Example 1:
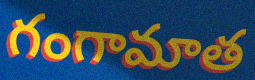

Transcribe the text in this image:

గంగామాత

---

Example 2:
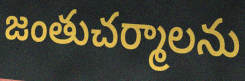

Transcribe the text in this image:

జంతుచర్మాలను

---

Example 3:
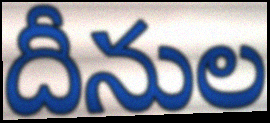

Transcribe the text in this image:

దీనుల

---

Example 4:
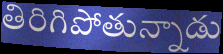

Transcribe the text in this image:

తిరిగిపోతున్నాడు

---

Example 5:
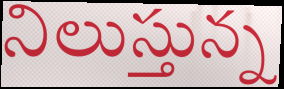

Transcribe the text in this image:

నిలుస్తున్న